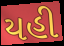
યહી